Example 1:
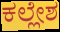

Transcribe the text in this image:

ಕಲ್ಲೇಶ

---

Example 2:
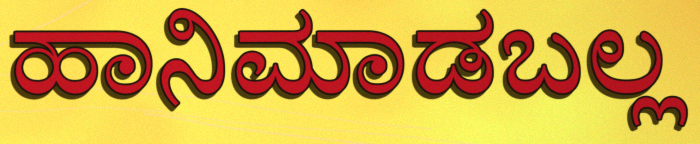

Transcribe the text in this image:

ಹಾನಿಮಾಡಬಲ್ಲ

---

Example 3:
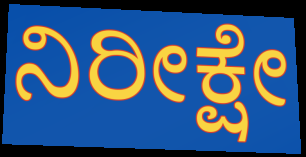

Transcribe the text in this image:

ನಿರೀಕ್ಷೇ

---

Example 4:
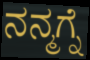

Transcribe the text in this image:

ನನ್ಮಗ್ನೆ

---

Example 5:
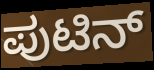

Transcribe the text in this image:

ಪುಟಿನ್